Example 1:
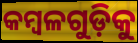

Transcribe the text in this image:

କମ୍ବଳଗୁଡ଼ିକୁ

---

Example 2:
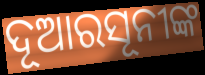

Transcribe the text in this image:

ଦୂଆରସୂନୀଙ୍କ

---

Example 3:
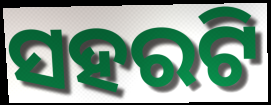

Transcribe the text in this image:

ସହରଟି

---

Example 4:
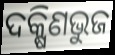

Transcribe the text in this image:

ଦକ୍ଷିଣଭୁଜ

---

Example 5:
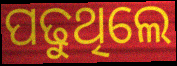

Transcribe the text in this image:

ପଢୁଥିଲେ